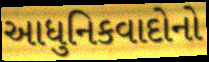
આધુનિકવાદોનો